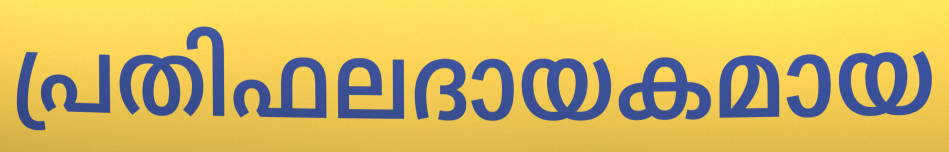
പ്രതിഫലദായകമായ